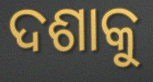
ଦଶାକୁ